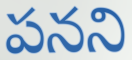
పనని